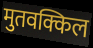
मुतवक्किल